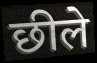
छीले